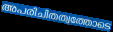
അപരിചിതത്വത്തോടെ